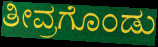
ತೀವ್ರಗೊಂಡು